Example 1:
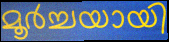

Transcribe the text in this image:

മൂർച്ചയായി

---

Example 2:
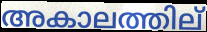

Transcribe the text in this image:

അകാലത്തില്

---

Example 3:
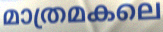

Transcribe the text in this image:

മാത്രമകലെ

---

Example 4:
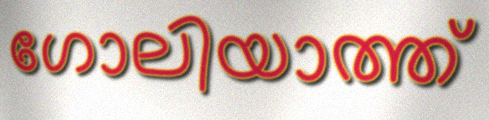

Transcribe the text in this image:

ഗോലിയാത്ത്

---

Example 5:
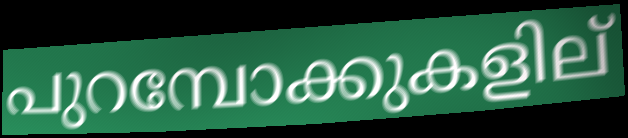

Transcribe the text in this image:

പുറമ്പോക്കുകളില്